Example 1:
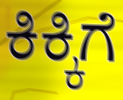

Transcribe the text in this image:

ಕಿಕ್ಕಿಗೆ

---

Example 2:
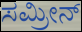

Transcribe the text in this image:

ಸಮ್ರೀನ್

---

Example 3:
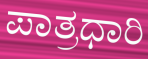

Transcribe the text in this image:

ಪಾತ್ರಧಾರಿ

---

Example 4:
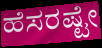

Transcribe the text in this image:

ಹೆಸರಷ್ಟೇ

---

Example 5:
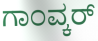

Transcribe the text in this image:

ಗಾಂವ್ಕರ್